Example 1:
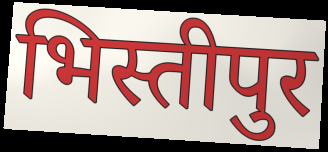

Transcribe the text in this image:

भिस्तीपुर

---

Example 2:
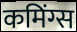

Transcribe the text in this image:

कमिंग्स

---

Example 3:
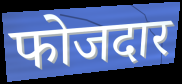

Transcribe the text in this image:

फोजदार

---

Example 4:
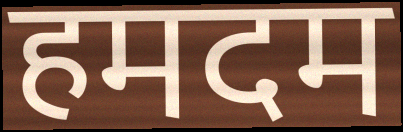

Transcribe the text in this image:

हमदम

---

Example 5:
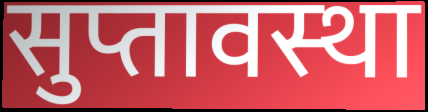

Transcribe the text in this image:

सुप्तावस्था